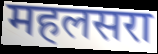
महलसरा